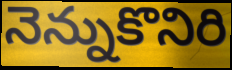
నెన్నుకొనిరి